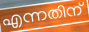
എന്നതിന്